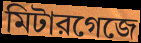
মিটারগেজে